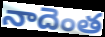
నాదెంత